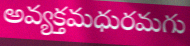
అవ్యక్తమధురమగు